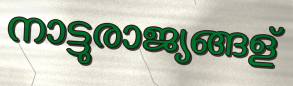
നാട്ടുരാജ്യങ്ങള്